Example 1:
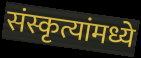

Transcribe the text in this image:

संस्कृत्यांमध्ये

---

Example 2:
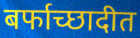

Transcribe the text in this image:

बर्फाच्छादीत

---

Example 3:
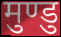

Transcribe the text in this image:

मुण्डु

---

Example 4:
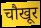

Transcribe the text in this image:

चौखूर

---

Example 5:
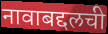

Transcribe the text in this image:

नावाबद्दलची